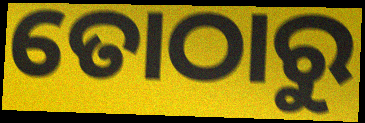
ତୋଠାରୁ